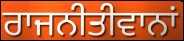
ਰਾਜਨੀਤੀਵਾਨਾਂ